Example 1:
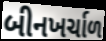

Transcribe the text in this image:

બીનખર્ચાળ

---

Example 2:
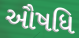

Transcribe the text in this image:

ઔષધિ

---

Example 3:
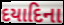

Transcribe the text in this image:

દયાદિના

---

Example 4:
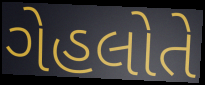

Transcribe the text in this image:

ગેહલોતે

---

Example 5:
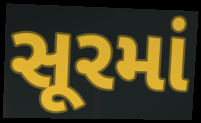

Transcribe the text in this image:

સૂરમાં